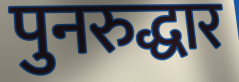
पुनरुद्धार